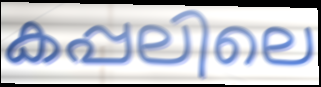
കപ്പലിലെ